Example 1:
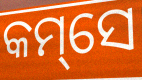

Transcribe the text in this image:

କମ୍‌ସେ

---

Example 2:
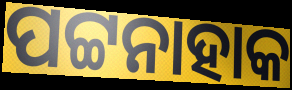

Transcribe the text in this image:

ପଟ୍ଟନାହାକ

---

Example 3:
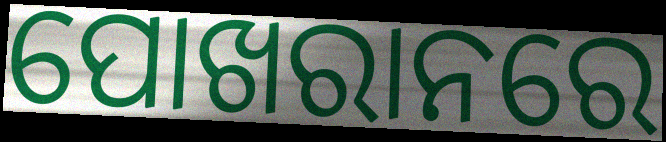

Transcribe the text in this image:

ପୋଖରାନରେ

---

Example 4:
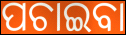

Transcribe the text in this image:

ପଚାଇବା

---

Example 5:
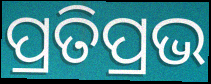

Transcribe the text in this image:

ପ୍ରତିପ୍ରଭ